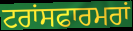
ਟਰਾਂਸਫਾਰਮਰਾਂ